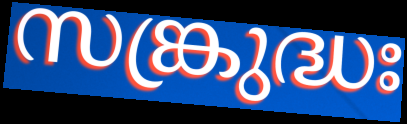
സങ്ക്രുദ്ധഃ